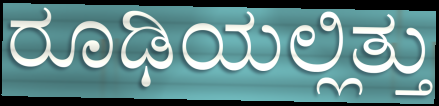
ರೂಢಿಯಲ್ಲಿತ್ತು